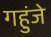
गहुंजे